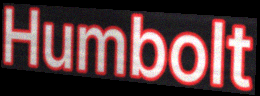
Humbolt